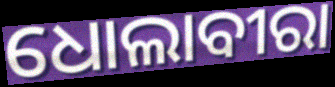
ଧୋଲାବୀରା